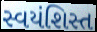
સ્વયંશિસ્ત